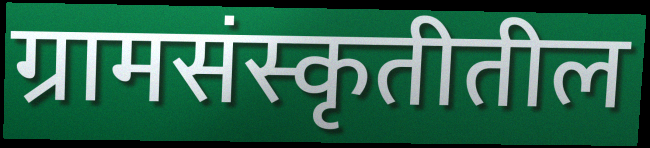
ग्रामसंस्कृतीतील